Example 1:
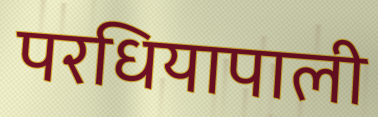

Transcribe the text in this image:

परधियापाली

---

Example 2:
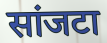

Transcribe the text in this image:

सांजटा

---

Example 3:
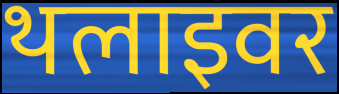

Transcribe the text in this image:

थलाइवर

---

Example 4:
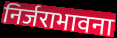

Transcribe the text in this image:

निर्जराभावना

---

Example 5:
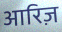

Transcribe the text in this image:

आरिज़